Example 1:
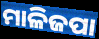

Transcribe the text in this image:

ମାଳିଜପା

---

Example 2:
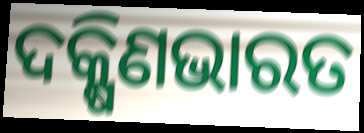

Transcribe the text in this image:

ଦକ୍ଷିଣଭାରତ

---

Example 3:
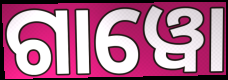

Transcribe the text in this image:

ଗାୱୋ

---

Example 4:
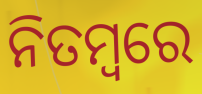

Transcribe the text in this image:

ନିତମ୍ୱରେ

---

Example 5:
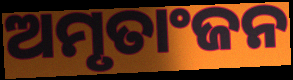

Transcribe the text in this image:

ଅମୃତାଂଜନ